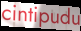
cintipudu